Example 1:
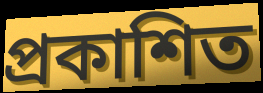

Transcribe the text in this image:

প্রকাশিত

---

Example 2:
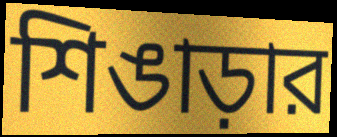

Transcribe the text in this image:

শিঙাড়ার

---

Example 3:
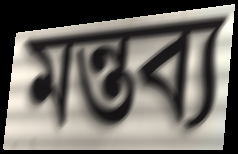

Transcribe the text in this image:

মন্তব্য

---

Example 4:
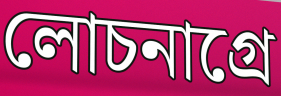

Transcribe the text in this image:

লোচনাগ্রে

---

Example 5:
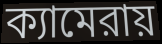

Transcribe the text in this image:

ক্যামেরায়